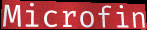
Microfin